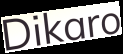
Dikaro